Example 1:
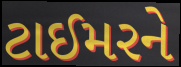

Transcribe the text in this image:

ટાઈમરને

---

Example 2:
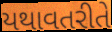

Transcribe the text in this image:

યથાવતરીતે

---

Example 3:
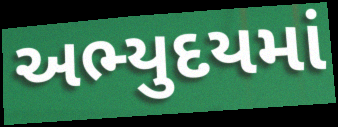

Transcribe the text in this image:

અભ્યુદયમાં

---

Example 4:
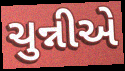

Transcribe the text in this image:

ચુન્નીએ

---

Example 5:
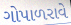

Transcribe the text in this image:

ગોપાળરાવે